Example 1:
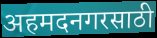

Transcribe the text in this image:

अहमदनगरसाठी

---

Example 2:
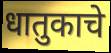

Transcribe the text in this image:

धातुकाचे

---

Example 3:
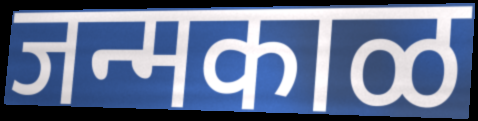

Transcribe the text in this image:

जन्मकाळ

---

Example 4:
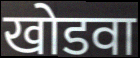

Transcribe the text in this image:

खोडवा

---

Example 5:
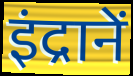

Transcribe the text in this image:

इंद्रानें